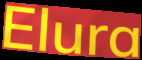
Elura